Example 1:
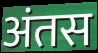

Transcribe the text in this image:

अंतस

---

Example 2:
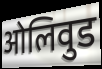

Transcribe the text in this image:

ओलिवुड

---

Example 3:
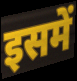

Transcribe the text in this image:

इसमें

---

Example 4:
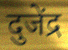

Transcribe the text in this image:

दुजेंद्र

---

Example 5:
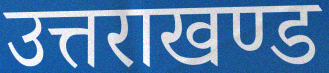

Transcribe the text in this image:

उत्तराखण्ड